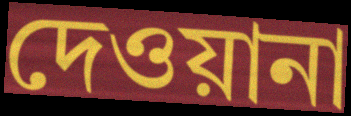
দেওয়ানা